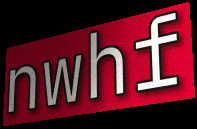
nwhf